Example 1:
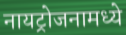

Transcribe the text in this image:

नायट्रोजनामध्ये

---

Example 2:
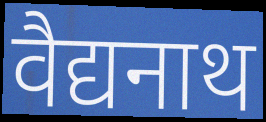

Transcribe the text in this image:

वैद्यनाथ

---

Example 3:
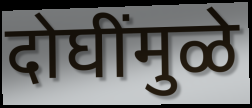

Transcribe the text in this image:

दोघींमुळे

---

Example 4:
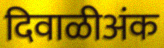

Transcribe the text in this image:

दिवाळीअंक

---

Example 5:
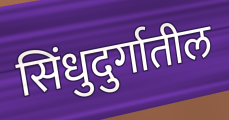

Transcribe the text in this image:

सिंधुदुर्गातील